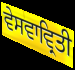
ਵੇਸਵਾਵ੍ਰਿਤੀ